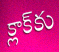
క్లాక్‌కు